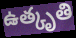
ఉత్కృతి